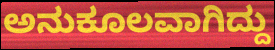
ಅನುಕೂಲವಾಗಿದ್ದು